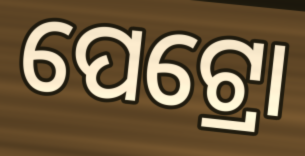
ପେଟ୍ରୋ